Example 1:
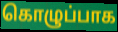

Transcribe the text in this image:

கொழுப்பாக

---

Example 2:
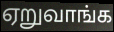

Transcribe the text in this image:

ஏறுவாங்க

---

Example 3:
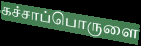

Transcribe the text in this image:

கச்சாப்பொருளை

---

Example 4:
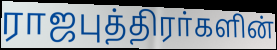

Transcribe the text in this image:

ராஜபுத்திரர்களின்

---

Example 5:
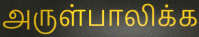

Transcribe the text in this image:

அருள்பாலிக்க